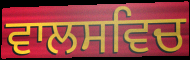
ਵਾਲਸਵਿਚ